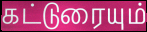
கட்டுரையும்